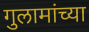
गुलामांच्या